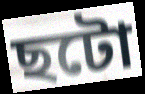
ছটো